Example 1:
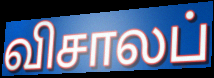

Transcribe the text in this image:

விசாலப்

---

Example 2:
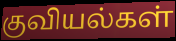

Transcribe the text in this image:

குவியல்கள்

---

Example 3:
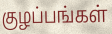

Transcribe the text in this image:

குழப்பங்கள்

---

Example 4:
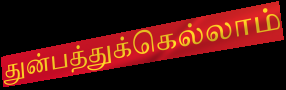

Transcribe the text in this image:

துன்பத்துக்கெல்லாம்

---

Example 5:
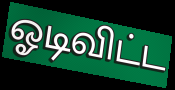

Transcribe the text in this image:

ஓடிவிட்ட